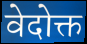
वेदोक्त